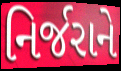
નિર્જરાને